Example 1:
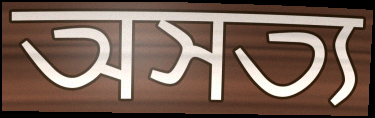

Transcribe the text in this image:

অসত্য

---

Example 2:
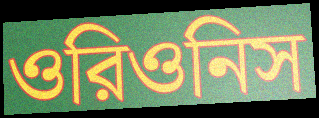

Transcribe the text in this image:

ওরিওনিস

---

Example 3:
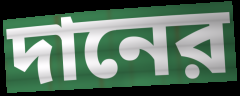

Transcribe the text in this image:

দানের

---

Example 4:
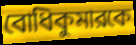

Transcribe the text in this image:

বোধিকুমারকে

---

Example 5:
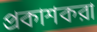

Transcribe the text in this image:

প্রকাশকরা